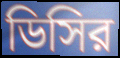
ডিসির